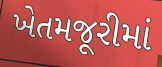
ખેતમજૂરીમાં